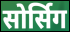
सोर्सिग